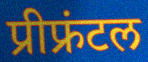
प्रीफ्रंटल